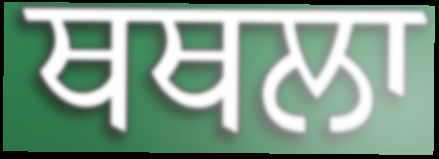
ਥਥਲਾ